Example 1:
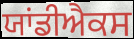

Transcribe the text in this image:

ਯਾਂਡੀਐਕਸ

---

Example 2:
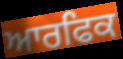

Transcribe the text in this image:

ਆਰਫਿਕ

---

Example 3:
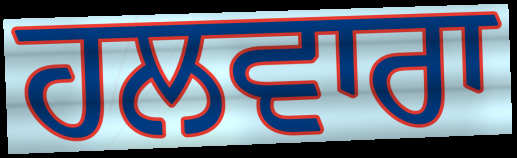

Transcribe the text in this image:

ਹਲਵਾਰਾ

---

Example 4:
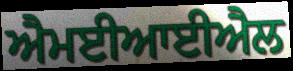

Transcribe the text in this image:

ਐਮਈਆਈਐਲ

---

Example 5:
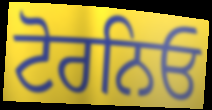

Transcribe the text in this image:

ਟੋਰਨਿਓ